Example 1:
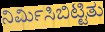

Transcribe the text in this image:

ನಿರ್ಮಿಸಿಬಿಟ್ಟಿತು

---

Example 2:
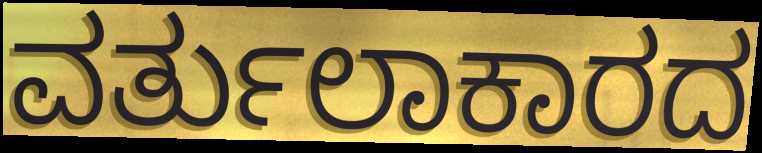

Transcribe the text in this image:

ವರ್ತುಲಾಕಾರದ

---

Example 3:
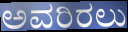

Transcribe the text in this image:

ಅವರಿರಲು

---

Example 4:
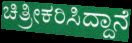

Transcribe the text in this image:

ಚಿತ್ರೀಕರಿಸಿದ್ದಾನೆ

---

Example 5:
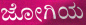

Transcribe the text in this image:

ಜೋಗಿಯ